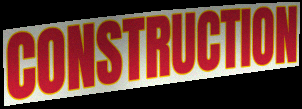
CONSTRUCTION